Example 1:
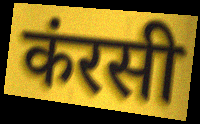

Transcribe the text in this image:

कंरसी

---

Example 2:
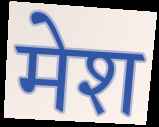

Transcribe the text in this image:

मेश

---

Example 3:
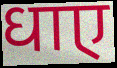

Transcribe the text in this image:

धाए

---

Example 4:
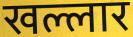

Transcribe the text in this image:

खल्लार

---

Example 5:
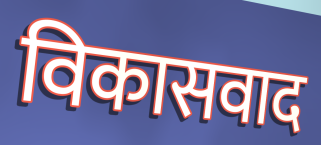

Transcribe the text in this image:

विकासवाद